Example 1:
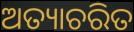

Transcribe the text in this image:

ଅତ୍ୟାଚରିତ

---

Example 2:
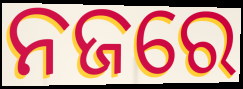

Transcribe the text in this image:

ନଜରେ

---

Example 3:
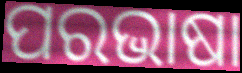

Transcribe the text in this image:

ପରଭାଷା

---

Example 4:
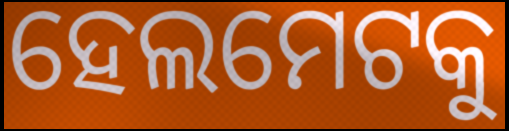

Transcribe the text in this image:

ହେଲମେଟକୁ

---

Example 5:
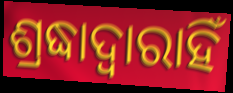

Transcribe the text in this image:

ଶ୍ରଦ୍ଧାଦ୍ୱାରାହିଁ